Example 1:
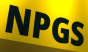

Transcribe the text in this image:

NPGS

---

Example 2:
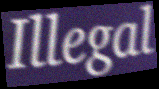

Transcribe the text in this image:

Illegal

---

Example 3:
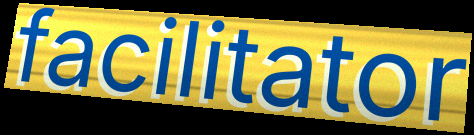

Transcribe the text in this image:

facilitator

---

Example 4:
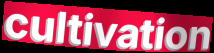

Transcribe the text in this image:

cultivation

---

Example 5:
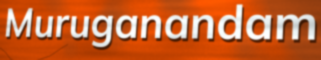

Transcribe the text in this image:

Muruganandam